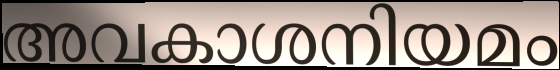
അവകാശനിയമം